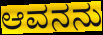
ಆವನನು